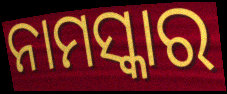
ନାମସ୍କାର